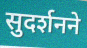
सुदर्शनने